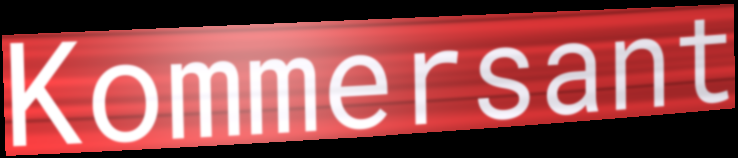
Kommersant